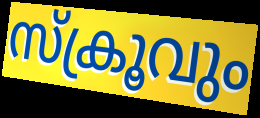
സ്ക്രൂവും